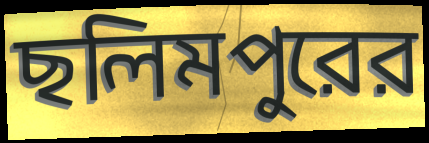
ছলিমপুরের